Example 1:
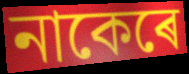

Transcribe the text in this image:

নাকেৰে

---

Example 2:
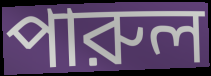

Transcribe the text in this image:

পাৰুল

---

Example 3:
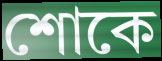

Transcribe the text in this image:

শোকে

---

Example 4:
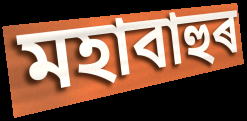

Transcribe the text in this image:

মহাবাহুৰ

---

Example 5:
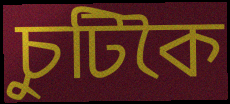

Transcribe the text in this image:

চুটিকৈ